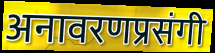
अनावरणप्रसंगी